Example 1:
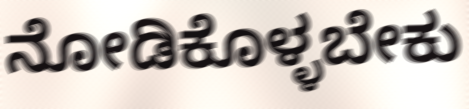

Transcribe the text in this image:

ನೋಡಿಕೊಳ್ಳಬೇಕು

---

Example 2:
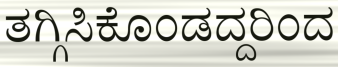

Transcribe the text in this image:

ತಗ್ಗಿಸಿಕೊಂಡದ್ದರಿಂದ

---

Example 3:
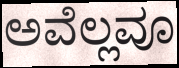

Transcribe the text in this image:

ಅವೆಲ್ಲವೂ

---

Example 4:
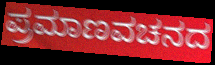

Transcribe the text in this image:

ಪ್ರಮಾಣವಚನದ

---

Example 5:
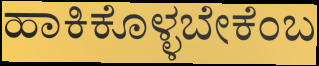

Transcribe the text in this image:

ಹಾಕಿಕೊಳ್ಳಬೇಕೆಂಬ